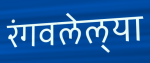
रंगवलेल्या